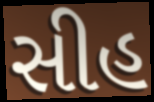
સીહ